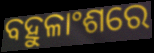
ବହୁଳାଂଶରେ